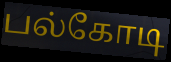
பல்கோடி